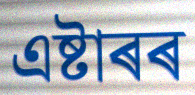
এষ্টাৰৰ